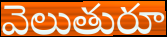
వెలుతురూ